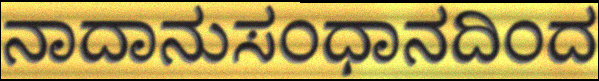
ನಾದಾನುಸಂಧಾನದಿಂದ